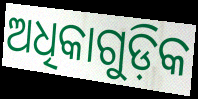
ଅଧିକାଗୁଡ଼ିକ